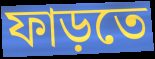
ফাড়তে